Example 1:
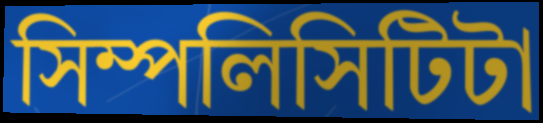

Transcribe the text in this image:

সিম্পলিসিটিটা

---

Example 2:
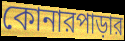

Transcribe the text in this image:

কোনারপাড়ার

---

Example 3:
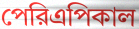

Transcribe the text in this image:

পেরিএপিকাল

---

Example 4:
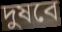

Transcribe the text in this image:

দুষবে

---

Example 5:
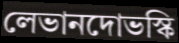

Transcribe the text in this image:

লেভানদোভস্কি